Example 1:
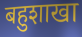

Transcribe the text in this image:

बहुशाखा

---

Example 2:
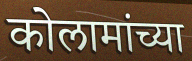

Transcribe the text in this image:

कोलामांच्या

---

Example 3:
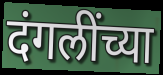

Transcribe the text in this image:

दंगलींच्या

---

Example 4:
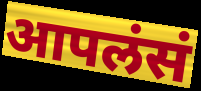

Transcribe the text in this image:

आपलंसं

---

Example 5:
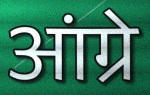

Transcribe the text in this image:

आंग्रे